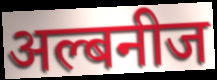
अल्बनीज